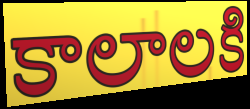
కాలాలకి